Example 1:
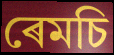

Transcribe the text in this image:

ৰেমচি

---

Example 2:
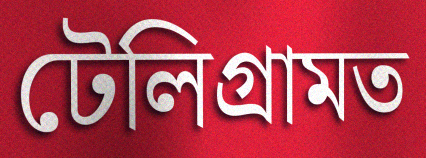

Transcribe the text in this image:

টেলিগ্ৰামত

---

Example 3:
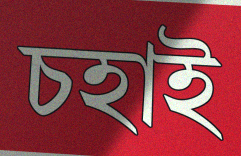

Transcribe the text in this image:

চহাই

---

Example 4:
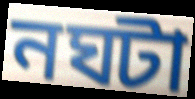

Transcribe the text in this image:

নঘটা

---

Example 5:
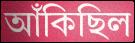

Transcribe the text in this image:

আঁকিছিল